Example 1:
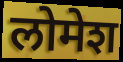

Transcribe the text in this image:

लोमेश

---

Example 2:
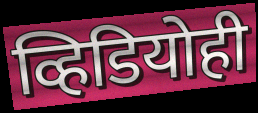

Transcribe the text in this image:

व्हिडियोही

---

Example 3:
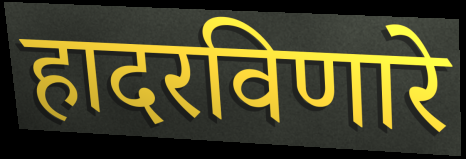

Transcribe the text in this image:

हादरविणारे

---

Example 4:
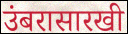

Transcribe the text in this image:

उंबरासारखी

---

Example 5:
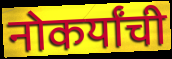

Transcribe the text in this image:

नोकर्यांची